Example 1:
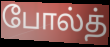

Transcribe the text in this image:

போல்த்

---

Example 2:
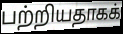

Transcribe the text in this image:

பற்றியதாகக்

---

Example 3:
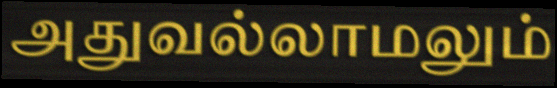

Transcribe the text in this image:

அதுவல்லாமலும்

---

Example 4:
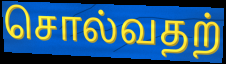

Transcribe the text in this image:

சொல்வதற்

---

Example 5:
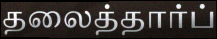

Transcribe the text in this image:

தலைத்தார்ப்